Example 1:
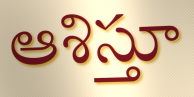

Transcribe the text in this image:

ఆశిస్తూ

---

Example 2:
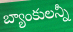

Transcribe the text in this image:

బ్యాంకులన్నీ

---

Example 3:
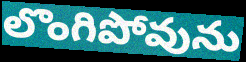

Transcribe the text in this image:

లొంగిపోవును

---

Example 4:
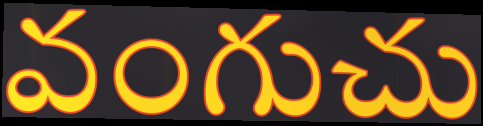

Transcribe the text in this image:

వంగుచు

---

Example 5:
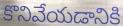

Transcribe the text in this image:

కొనివేయడానికి